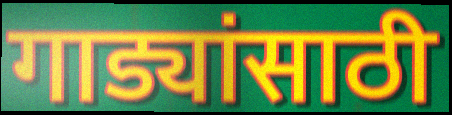
गाड्यांसाठी